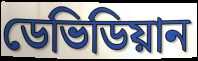
ডেভিডিয়ান